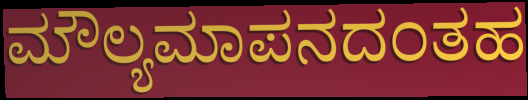
ಮೌಲ್ಯಮಾಪನದಂತಹ